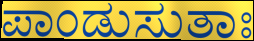
ಪಾಂಡುಸುತಾಃ